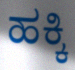
ಹಕ್ಕಿ